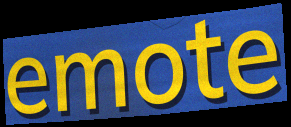
emote